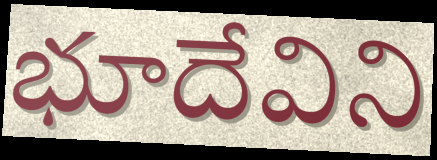
భూదేవిని